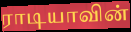
ராடியாவின்